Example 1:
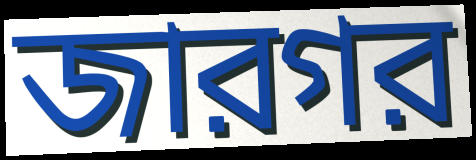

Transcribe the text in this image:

জারগর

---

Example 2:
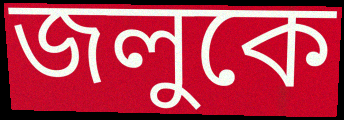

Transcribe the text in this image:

জলুকে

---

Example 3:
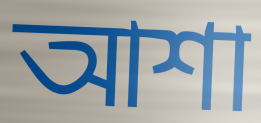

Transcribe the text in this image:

আশা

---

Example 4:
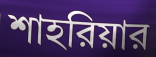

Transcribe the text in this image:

শাহরিয়ার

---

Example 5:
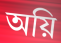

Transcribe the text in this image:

অয়ি